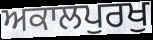
ਅਕਾਲਪੁਰਖੁ